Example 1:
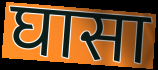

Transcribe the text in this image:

घासा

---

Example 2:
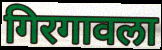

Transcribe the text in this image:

गिरगावला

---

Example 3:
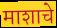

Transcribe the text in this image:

माशाचे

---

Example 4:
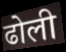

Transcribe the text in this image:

ढोली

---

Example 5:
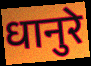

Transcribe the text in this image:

धानुरे